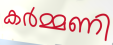
കർമ്മണി